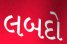
લબદો